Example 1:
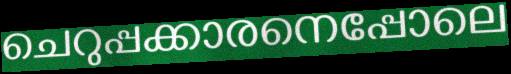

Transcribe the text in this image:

ചെറുപ്പക്കാരനെപ്പോലെ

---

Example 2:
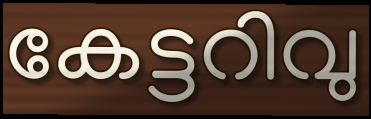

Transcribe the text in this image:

കേട്ടറിവു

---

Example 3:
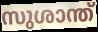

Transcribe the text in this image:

സുശാന്ത്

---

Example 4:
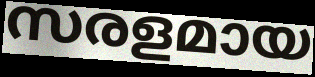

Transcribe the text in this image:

സരളമായ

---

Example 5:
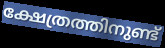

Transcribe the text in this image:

ക്ഷേത്രത്തിനുണ്ട്